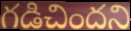
గడిచిందని